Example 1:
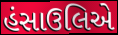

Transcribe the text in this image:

હંસાઉલિએ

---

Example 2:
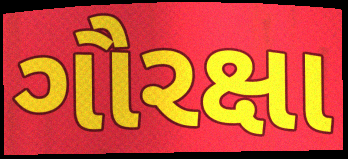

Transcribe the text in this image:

ગૌરક્ષા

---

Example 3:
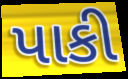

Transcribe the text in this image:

પાકી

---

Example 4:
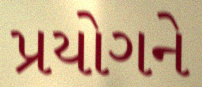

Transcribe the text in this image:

પ્રયોગને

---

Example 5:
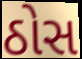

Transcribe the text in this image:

ઠોસ